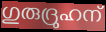
ഗുരുദ്രുഹന്